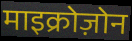
माइक्रोज़ोन